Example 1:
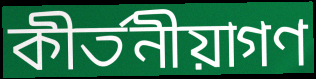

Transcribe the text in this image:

কীর্তনীয়াগণ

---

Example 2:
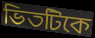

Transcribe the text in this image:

ভিতটিকে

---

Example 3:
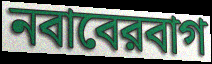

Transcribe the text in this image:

নবাবেরবাগ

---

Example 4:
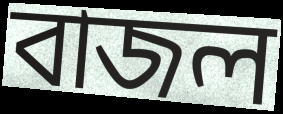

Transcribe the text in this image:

বাজল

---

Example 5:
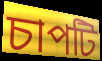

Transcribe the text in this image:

চাপটি